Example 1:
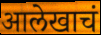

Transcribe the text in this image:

आलेखाचं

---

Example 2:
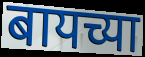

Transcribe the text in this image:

बायच्या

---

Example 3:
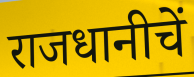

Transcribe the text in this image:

राजधानीचें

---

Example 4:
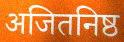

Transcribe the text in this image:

अजितनिष्ठ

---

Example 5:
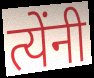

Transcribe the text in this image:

त्येंनी